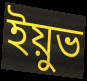
ইয়ুভ